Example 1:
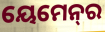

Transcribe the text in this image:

ୟେମେନ୍‌ର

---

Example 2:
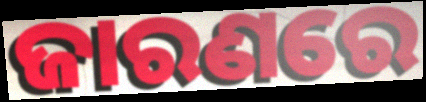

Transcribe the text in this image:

ଜାରଣରେ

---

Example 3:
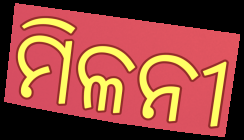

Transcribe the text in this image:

ମିଳନୀ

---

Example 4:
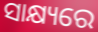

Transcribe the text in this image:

ସାକ୍ଷ୍ୟରେ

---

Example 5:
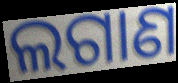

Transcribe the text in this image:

ଲଗାଣ